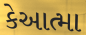
કેઆત્મા